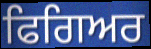
ਫਿਗਿਅਰ